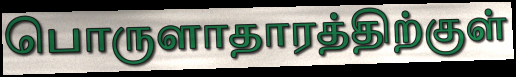
பொருளாதாரத்திற்குள்